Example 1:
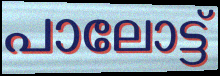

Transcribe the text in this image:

പാലോട്ട്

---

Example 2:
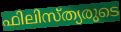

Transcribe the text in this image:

ഫിലിസ്ത്യരുടെ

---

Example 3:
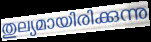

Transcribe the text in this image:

തുല്യമായിരിക്കുന്നു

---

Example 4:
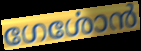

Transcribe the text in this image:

ഗേൎശോൻ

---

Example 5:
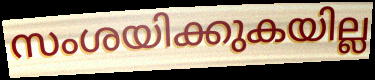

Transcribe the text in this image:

സംശയിക്കുകയില്ല